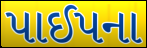
પાઈપના